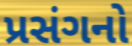
પ્રસંગનો